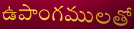
ఉపాంగములతో